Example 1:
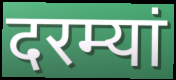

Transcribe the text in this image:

दरम्यां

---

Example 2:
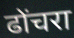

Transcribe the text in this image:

ढोंचरा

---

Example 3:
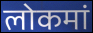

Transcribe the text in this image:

लोकमां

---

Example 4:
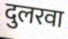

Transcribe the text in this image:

दुलरवा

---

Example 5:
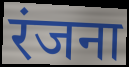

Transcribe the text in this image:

रंजना